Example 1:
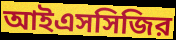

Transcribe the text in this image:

আইএসসিজির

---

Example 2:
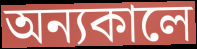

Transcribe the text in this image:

অন্যকালে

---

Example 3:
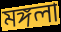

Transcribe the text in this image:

মঙ্গলা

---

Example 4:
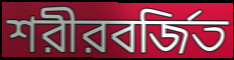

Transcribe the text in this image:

শরীরবর্জিত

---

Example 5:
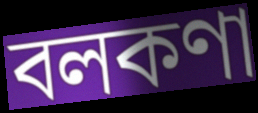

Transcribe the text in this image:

বলকণা